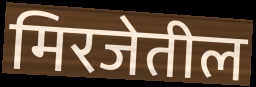
मिरजेतील